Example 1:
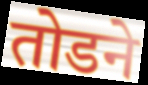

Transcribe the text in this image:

तोडने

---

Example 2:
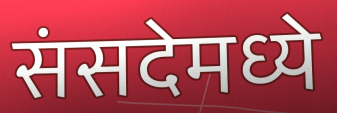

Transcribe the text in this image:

संसदेमध्ये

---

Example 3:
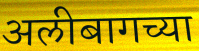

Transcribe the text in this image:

अलीबागच्या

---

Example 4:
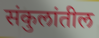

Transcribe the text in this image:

संकुलांतील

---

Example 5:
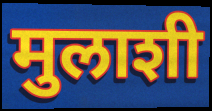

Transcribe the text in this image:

मुलाशी